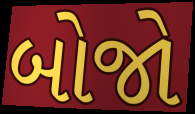
બોજો